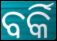
ବର୍କି